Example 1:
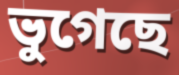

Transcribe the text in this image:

ভুগেছে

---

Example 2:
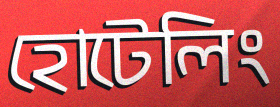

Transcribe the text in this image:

হোটেলিং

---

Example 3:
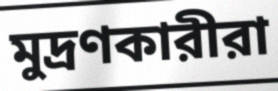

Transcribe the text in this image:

মুদ্রণকারীরা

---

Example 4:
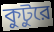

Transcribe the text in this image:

কুটুরে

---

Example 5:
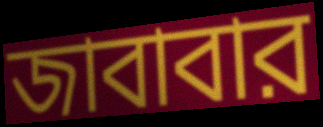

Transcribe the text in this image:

জাবাবার